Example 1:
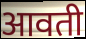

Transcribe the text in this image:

आवती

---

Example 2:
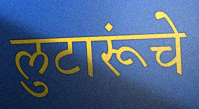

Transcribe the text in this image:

लुटारूंचे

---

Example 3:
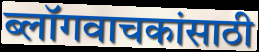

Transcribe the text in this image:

ब्लॉगवाचकांसाठी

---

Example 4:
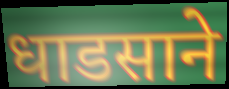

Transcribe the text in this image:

धाडसाने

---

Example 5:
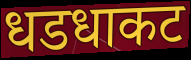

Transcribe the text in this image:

धडधाकट